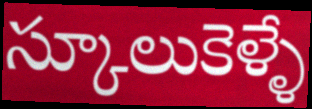
స్కూలుకెళ్ళే